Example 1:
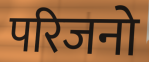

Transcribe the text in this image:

परिजनो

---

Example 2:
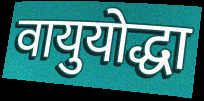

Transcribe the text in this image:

वायुयोद्धा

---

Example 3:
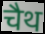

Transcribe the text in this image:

चैथ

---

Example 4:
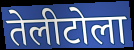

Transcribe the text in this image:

तेलीटोला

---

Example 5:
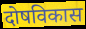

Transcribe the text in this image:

दोषविकास